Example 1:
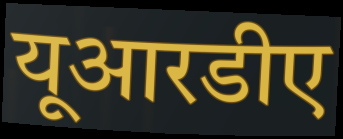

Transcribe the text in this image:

यूआरडीए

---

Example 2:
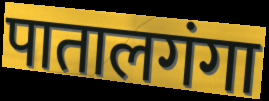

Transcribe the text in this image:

पातालगंगा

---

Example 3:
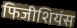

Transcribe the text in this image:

फिजीशियंस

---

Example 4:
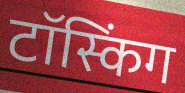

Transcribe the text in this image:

टॉस्किंग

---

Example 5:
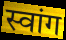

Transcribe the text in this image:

स्‍वांग